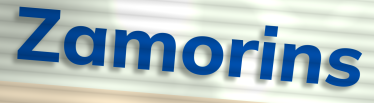
Zamorins